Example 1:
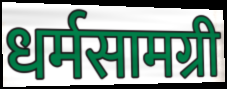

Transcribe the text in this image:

धर्मसामग्री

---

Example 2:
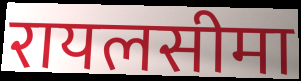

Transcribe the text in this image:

रायलसीमा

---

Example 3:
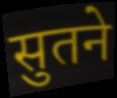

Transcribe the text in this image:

सुतने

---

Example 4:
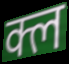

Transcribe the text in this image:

क्ल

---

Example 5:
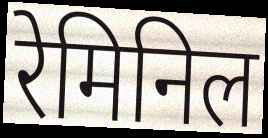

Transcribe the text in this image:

रेमिनिल